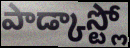
పాడ్కాస్ట్లో